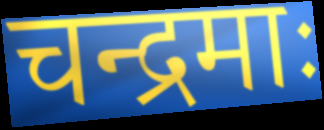
चन्द्रमाः